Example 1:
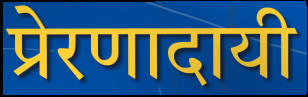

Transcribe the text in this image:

प्रेरणादायी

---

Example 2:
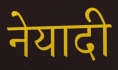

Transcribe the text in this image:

नेयादी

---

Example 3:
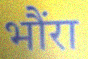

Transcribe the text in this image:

भौंरा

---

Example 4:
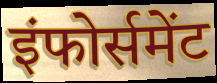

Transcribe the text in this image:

इंफोर्समेंट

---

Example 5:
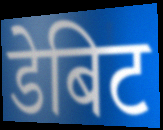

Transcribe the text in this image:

डेबिट